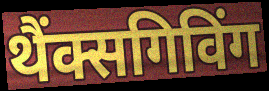
थैंक्सगिविंग